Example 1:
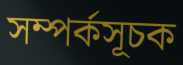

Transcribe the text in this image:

সম্পর্কসূচক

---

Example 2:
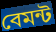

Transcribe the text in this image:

বেমন্ট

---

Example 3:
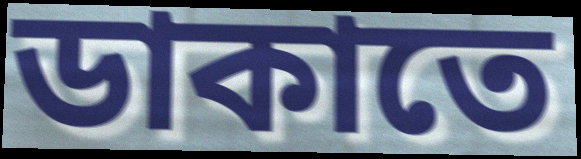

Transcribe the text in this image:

ডাকাতে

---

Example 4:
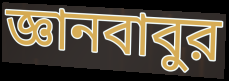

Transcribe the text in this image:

জ্ঞানবাবুর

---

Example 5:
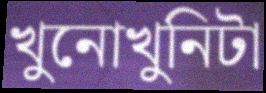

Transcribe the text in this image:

খুনোখুনিটা